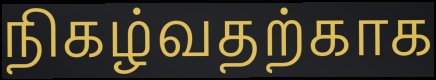
நிகழ்வதற்காக